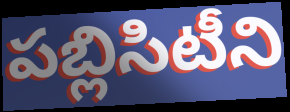
పబ్లిసిటీని